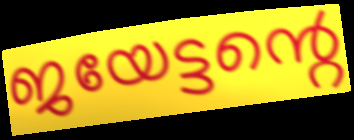
ജയേട്ടന്റെ